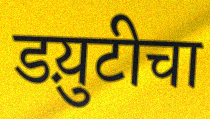
डय़ुटीचा